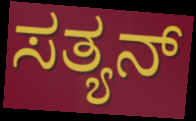
ಸತ್ಯನ್